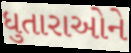
ધુતારાઓને